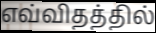
எவ்விதத்தில்